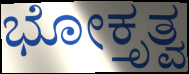
ಭೋಕ್ತೃತ್ವ